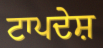
ਟਾਪਦੇਸ਼